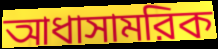
আধাসামরিক